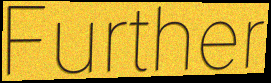
Further